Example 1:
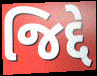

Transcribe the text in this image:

જિદ્દે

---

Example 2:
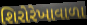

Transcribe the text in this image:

શિરોરેખાવાળા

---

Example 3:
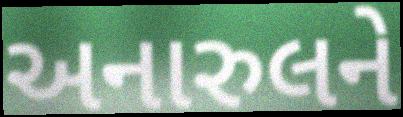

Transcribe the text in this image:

અનારુલને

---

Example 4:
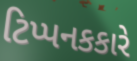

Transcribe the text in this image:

ટિપ્પનકકારે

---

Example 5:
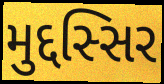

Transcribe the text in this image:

મુદ્દસ્સિર